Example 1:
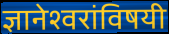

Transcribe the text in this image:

ज्ञानेश्वरांविषयी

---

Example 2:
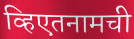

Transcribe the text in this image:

व्हिएतनामची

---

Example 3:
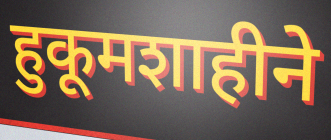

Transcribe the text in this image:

हुकूमशाहीने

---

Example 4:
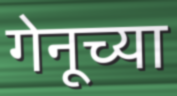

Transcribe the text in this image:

गेनूच्या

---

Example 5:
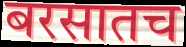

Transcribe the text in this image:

बरसातच